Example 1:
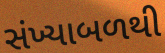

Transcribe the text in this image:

સંખ્યાબળથી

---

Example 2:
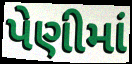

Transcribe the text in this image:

પેણીમાં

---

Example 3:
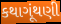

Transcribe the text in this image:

કથાગૂંથણી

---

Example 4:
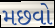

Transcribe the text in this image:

મછવો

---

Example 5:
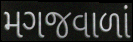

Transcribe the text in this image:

મગજવાળાં